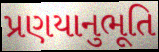
પ્રણયાનુભૂતિ